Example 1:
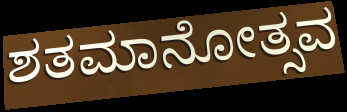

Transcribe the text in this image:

ಶತಮಾನೋತ್ಸವ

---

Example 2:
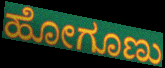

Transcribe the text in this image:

ಹೋಗೂಣು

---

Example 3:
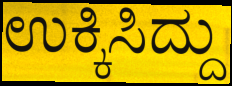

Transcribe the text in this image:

ಉಕ್ಕಿಸಿದ್ದು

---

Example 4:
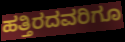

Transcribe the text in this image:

ಹತ್ತಿರದವರಿಗೂ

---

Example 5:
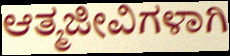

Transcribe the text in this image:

ಆತ್ಮಜೀವಿಗಳಾಗಿ